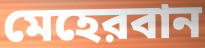
মেহেরবান